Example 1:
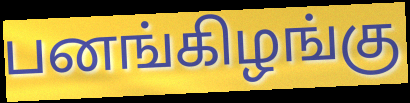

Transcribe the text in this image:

பனங்கிழங்கு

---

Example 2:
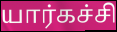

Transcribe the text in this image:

யார்கச்சி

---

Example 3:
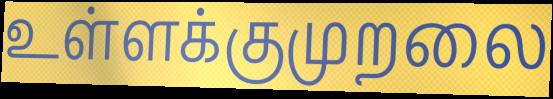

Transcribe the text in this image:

உள்ளக்குமுறலை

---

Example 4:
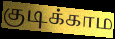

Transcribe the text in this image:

குடிக்காம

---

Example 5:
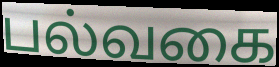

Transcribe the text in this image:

பல்வகை